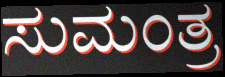
ಸುಮಂತ್ರ